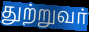
துற்றுவர்